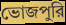
ভোজপুরি